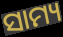
ସାମ୍ୟ